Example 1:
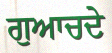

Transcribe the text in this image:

ਗੁਆਚਦੇ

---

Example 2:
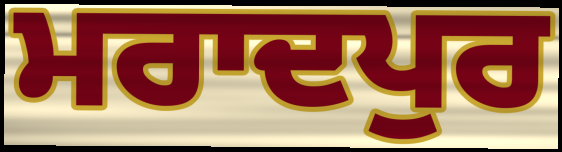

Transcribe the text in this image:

ਮਰਾਦਪੁਰ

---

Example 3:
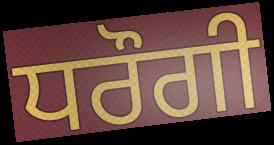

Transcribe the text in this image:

ਧਰੌਗੀ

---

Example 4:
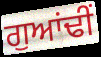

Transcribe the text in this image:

ਗੁਆਂਢੀਂ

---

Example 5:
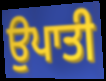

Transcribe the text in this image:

ਉਪਾਤੀ